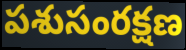
పశుసంరక్షణ